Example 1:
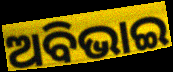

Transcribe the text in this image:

ଅବିଭାଇ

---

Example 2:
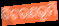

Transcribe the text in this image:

ବିଚରଣଭୂମି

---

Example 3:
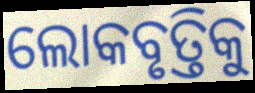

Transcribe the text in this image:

ଲୋକବୃତ୍ତିକୁ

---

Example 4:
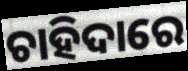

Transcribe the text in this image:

ଚାହିଦାରେ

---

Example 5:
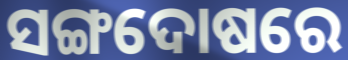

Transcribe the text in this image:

ସଙ୍ଗଦୋଷରେ